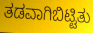
ತಡವಾಗಿಬಿಟ್ಟಿತು